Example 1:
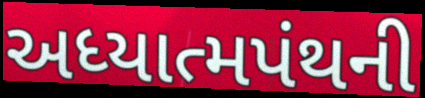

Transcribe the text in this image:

અધ્યાત્મપંથની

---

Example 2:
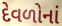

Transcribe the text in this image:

દેવળોનાં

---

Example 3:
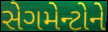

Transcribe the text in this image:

સેગમેન્ટોને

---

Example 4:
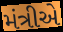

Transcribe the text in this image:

મંત્રીએ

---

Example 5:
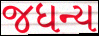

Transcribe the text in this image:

જધન્ય